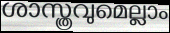
ശാസ്ത്രവുമെല്ലാം